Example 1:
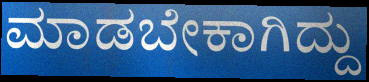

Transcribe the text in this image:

ಮಾಡಬೇಕಾಗಿದ್ದು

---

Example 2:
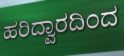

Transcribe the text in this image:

ಹರಿದ್ವಾರದಿಂದ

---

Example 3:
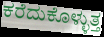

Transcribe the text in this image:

ಕರೆದುಕೊಳ್ಳುತ್ತ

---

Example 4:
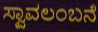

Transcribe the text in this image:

ಸ್ವಾವಲಂಬನೆ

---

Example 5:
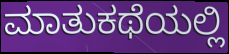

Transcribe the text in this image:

ಮಾತುಕಥೆಯಲ್ಲಿ